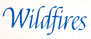
Wildfires